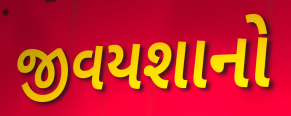
જીવયશાનો